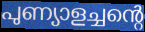
പുണ്യാളച്ചന്റെ